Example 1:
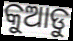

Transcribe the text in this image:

କୁଆଡୁ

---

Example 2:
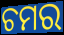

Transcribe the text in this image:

ଚମର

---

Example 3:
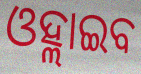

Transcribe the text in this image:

ଓହ୍ଲାଇବ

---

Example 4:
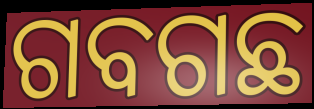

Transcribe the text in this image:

ଗବଗଛ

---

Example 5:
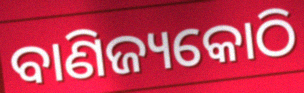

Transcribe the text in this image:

ବାଣିଜ୍ୟକୋଠି